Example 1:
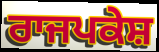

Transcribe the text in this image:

ਰਾਜਪਕੇਸ਼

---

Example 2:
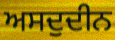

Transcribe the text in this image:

ਅਸਦੁਦੀਨ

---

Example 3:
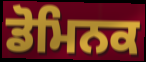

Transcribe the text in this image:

ਡੋਮਿਨਕ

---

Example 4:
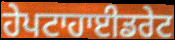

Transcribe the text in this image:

ਹੇਪਟਾਹਾਈਡਰੇਟ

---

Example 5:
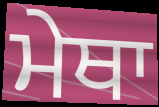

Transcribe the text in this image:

ਮੇਥਾ